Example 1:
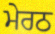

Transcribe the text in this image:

ਮੇਰਠ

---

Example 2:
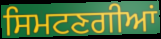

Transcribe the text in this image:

ਸਿਮਟਣਗੀਆਂ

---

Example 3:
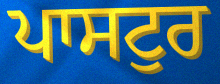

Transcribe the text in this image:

ਪਾਸਟੁਰ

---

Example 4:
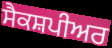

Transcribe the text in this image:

ਸੈਕਸ਼ਪੀਅਰ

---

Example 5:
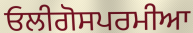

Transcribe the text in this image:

ਓਲੀਗੋਸਪਰਮੀਆ